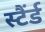
स्टैंर्ड